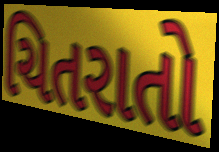
ચિતરાતો